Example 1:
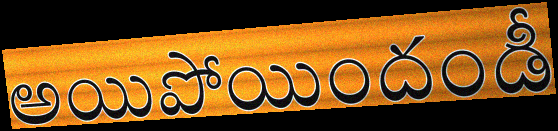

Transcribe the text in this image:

అయిపోయిందండీ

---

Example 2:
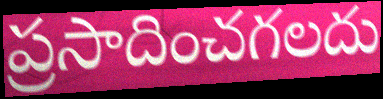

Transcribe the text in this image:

ప్రసాదించగలదు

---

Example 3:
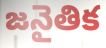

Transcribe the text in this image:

జనైతిక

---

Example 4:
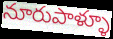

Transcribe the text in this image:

నూరుపాళ్ళూ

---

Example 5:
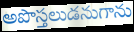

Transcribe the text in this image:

అపొస్తలుడనుగాను